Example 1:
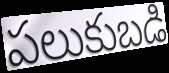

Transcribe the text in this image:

పలుకుబడి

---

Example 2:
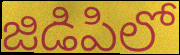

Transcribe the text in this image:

జిడిపిలో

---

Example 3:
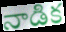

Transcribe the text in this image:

నాడిక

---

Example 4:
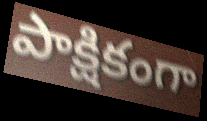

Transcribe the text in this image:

పాక్షికంగా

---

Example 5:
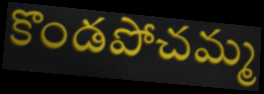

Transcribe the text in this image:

కొండపోచమ్మ